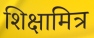
शिक्षामित्र